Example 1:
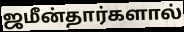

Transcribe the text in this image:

ஜமீன்தார்களால்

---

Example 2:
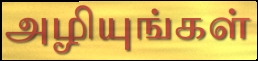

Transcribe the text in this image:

அழியுங்கள்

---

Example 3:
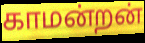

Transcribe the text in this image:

காமன்றன்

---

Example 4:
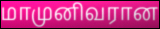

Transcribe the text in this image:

மாமுனிவரான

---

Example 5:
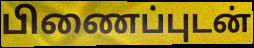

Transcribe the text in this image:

பிணைப்புடன்